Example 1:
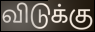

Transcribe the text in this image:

விடுக்கு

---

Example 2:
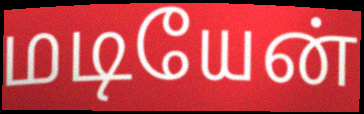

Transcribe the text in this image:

மடியேன்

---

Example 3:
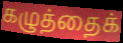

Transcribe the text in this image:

கழுத்தைக்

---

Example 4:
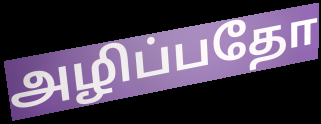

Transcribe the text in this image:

அழிப்பதோ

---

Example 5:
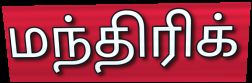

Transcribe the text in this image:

மந்திரிக்